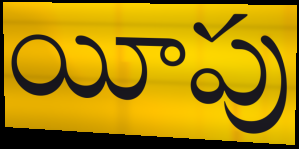
యీపు